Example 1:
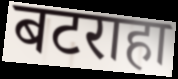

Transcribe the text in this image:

बटराहा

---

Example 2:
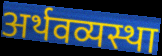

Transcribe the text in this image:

अर्थवव्यस्था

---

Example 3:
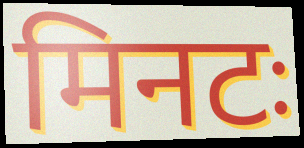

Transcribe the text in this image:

मिनटः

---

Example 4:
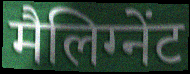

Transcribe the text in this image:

मैलिग्नेंट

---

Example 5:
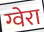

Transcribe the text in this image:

ग्वेरा